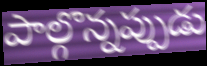
పాల్గొన్నప్పుడు